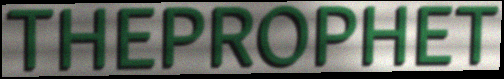
THEPROPHET